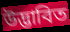
উদ্ভাবিত